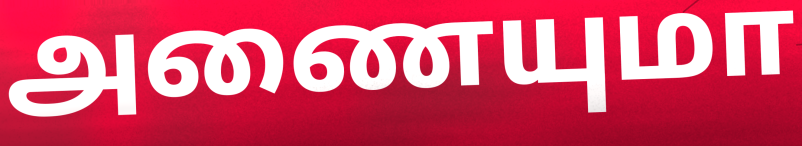
அணையுமா